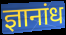
ज्ञानांध